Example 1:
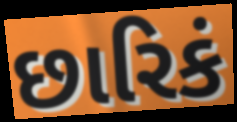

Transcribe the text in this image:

છારિકં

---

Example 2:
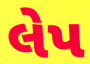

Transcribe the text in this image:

લેપ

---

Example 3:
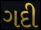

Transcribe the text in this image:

ગદી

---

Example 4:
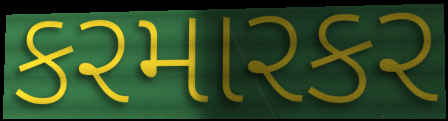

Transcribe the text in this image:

કરમારકર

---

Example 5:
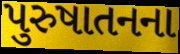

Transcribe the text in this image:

પુરુષાતનના